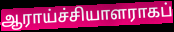
ஆராய்ச்சியாளராகப்